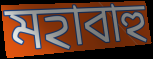
মহাবাহু